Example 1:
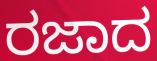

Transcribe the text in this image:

ರಜಾದ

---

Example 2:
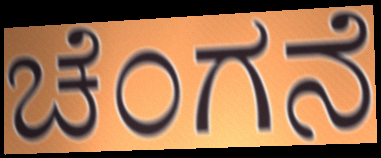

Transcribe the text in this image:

ಚೆಂಗನೆ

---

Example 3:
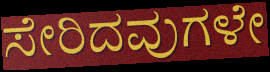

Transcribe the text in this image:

ಸೇರಿದವುಗಳೇ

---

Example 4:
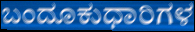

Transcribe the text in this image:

ಬಂದೂಕುಧಾರಿಗಳ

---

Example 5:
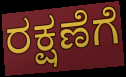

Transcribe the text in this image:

ರಕ್ಷಣೆಗೆ